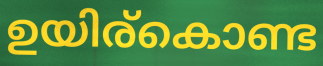
ഉയിര്കൊണ്ട